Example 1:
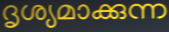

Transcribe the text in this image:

ദൃശ്യമാക്കുന്ന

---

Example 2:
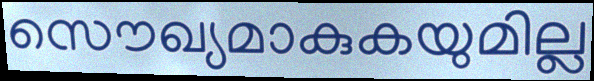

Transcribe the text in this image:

സൌഖ്യമാകുകയുമില്ല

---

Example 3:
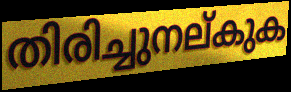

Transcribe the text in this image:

തിരിച്ചുനല്കുക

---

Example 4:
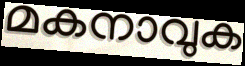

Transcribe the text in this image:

മകനാവുക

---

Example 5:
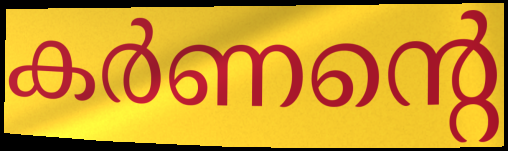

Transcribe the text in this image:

കർണന്റെ